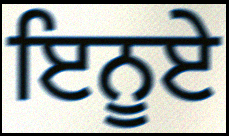
ਇਨੂਏ